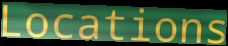
Locations